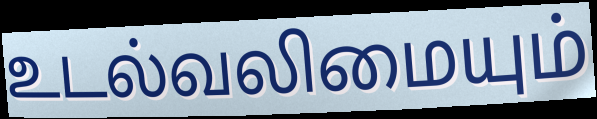
உடல்வலிமையும்